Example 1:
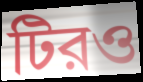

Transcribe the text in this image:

টিরও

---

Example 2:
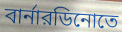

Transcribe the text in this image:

বার্নারডিনোতে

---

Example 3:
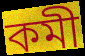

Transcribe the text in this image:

কমী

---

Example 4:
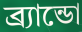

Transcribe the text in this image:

ব্র্যান্ডো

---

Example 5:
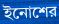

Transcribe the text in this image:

ইনোশের